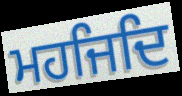
ਮਹਜਿਦਿ